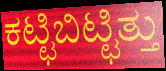
ಕಟ್ಟಿಬಿಟ್ಟಿತ್ತು